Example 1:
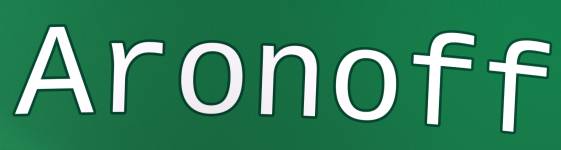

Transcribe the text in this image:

Aronoff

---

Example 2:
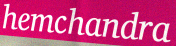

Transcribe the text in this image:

hemchandra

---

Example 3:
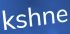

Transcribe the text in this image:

kshne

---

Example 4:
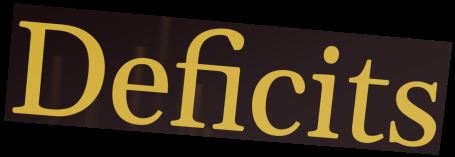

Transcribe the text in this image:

Deficits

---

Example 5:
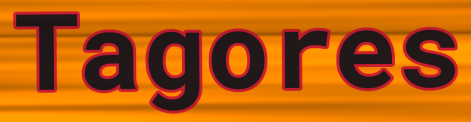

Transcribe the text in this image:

Tagores